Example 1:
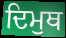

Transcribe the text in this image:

ਦਿਮੁਥ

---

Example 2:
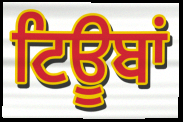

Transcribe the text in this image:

ਟਿਊਬਾਂ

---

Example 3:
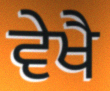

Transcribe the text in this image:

ਵੇਖੈ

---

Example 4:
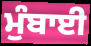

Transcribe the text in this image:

ਮੁੰਬਾਈ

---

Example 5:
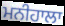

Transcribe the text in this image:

ਮਨੀਹਾਲਾ